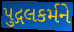
પુદ્ગલકર્મને